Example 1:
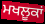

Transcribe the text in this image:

ਮਖਲੂਕਾਂ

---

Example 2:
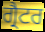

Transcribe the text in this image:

ਗ੍ਰੈਟਰ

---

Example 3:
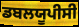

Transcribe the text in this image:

ਡਬਲਯੂਪੀਸੀ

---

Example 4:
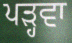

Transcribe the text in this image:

ਪੜ੍ਹਵਾ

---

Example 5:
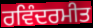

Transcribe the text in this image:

ਰਵਿੰਦਰਮੀਤ